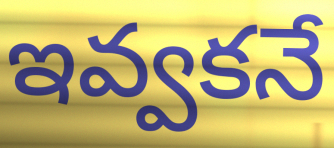
ఇవ్వకనే